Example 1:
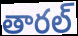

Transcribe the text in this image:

తారల్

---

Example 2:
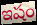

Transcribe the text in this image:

ఇషం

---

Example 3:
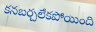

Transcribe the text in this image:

కనబర్చలేకపోయింది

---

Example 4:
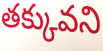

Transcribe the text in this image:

తక్కువని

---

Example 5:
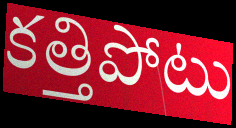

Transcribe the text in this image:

కత్తిపోటు